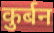
कुर्बन